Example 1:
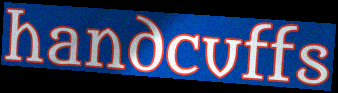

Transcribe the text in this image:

handcuffs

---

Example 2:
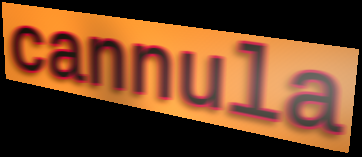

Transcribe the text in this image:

cannula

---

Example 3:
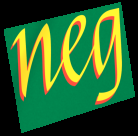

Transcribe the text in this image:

neg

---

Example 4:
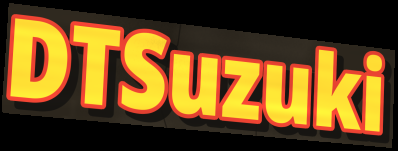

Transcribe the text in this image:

DTSuzuki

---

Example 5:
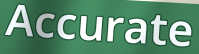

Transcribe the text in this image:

Accurate